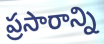
ప్రసారాన్ని